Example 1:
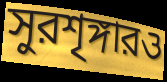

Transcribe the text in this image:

সুরশৃঙ্গারও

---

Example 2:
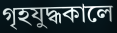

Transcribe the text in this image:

গৃহযুদ্ধকালে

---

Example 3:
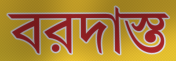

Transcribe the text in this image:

বরদাস্ত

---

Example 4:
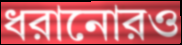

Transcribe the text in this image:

ধরানোরও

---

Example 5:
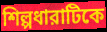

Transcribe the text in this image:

শিল্পধারাটিকে